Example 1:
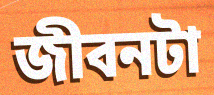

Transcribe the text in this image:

জীবনটা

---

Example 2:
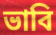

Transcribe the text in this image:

ভাবি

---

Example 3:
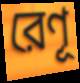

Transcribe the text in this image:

রেণূ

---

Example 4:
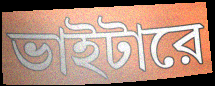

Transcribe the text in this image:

ভাইটারে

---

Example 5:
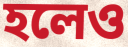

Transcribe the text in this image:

হলেও